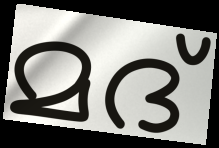
മദ്